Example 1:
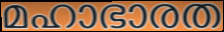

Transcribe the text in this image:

മഹാഭാരത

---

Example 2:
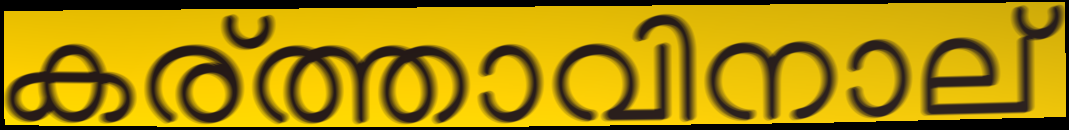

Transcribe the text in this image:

കര്ത്താവിനാല്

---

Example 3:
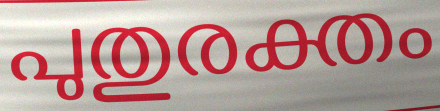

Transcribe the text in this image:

പുതുരക്തം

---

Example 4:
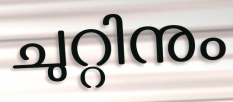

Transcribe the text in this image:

ചുറ്റിനും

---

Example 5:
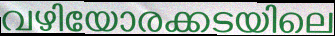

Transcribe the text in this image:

വഴിയോരക്കടയിലെ